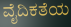
ವೈದಿಕತೆಯ